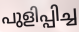
പുളിപ്പിച്ച